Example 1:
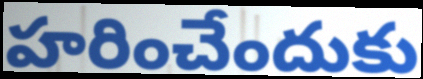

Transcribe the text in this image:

హరించేందుకు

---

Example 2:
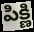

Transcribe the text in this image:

పిక్ణి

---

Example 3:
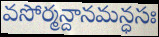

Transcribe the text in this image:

వసోర్మన్దానమన్ధసః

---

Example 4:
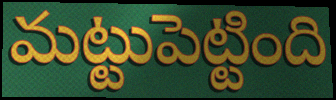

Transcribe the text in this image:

మట్టుపెట్టింది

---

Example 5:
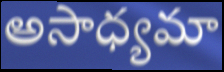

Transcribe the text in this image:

అసాధ్యమా